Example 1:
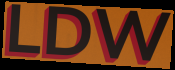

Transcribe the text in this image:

LDW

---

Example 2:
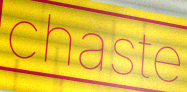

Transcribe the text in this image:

chaste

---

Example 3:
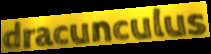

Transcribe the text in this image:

dracunculus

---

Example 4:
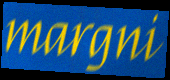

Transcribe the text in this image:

margni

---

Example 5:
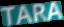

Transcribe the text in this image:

TARA